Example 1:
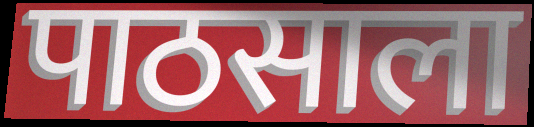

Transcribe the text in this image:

पाठसाला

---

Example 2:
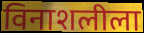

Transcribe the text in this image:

विनाशलीला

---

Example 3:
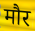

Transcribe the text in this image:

मौर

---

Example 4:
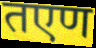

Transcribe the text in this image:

तएण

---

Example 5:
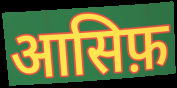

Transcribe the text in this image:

आसिफ़